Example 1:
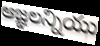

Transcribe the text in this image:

ఆజ్ఞలన్నియు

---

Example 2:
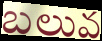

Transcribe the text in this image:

బలువ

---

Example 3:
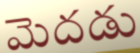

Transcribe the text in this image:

మెదడు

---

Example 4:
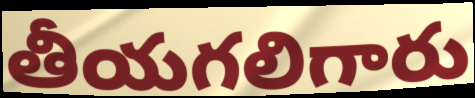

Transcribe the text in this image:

తీయగలిగారు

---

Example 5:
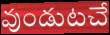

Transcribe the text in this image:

వుండుటచే